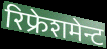
रिफ्रेशमेन्ट